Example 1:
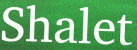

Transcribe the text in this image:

Shalet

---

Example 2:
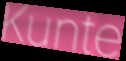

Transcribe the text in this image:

Kunte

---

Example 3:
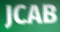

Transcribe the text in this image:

JCAB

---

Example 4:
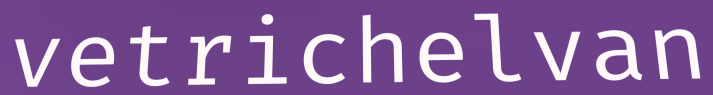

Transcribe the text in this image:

vetrichelvan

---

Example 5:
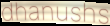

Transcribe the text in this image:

dhanushs